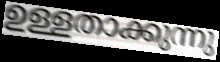
ഉള്ളതാക്കുന്നു